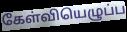
கேள்வியெழுப்ப